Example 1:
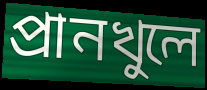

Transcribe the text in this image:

প্রানখুলে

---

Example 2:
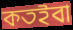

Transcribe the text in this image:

কতইবা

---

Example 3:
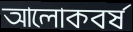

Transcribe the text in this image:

আলোকবর্ষ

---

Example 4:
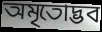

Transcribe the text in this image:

অমৃতোদ্ভব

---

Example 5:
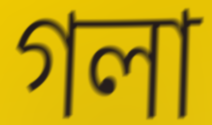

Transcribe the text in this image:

গলা